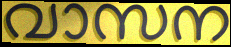
വാസന